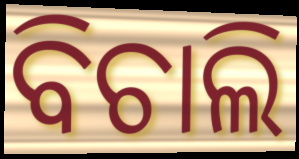
ବିଚାଲି